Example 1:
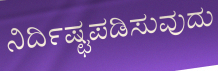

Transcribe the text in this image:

ನಿರ್ದಿಷ್ಟಪಡಿಸುವುದು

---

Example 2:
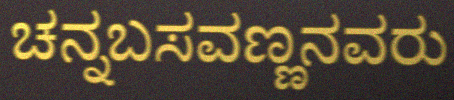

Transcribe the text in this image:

ಚನ್ನಬಸವಣ್ಣನವರು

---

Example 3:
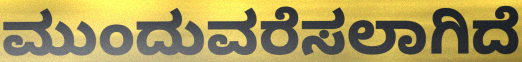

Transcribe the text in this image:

ಮುಂದುವರೆಸಲಾಗಿದೆ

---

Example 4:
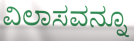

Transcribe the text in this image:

ವಿಲಾಸವನ್ನೂ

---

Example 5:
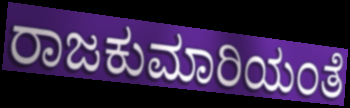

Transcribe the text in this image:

ರಾಜಕುಮಾರಿಯಂತೆ